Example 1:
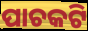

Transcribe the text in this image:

ପାଚକଟି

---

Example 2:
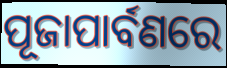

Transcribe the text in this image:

ପୂଜାପାର୍ବଣରେ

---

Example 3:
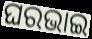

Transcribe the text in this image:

ଘରଭାଇ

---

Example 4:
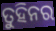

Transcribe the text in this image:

ତୁହିନର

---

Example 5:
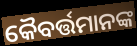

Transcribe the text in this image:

କୈବର୍ତ୍ତମାନଙ୍କ